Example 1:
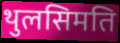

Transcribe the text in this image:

थुलसिमति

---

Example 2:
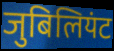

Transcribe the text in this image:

जुबिलियंट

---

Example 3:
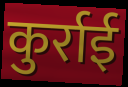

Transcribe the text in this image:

कुर्राई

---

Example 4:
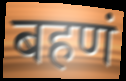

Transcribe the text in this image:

बहणं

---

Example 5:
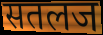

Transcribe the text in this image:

सतलज